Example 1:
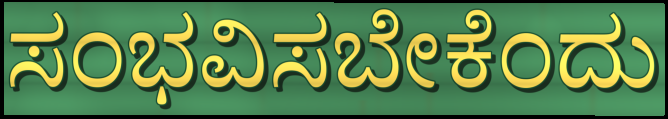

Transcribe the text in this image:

ಸಂಭವಿಸಬೇಕೆಂದು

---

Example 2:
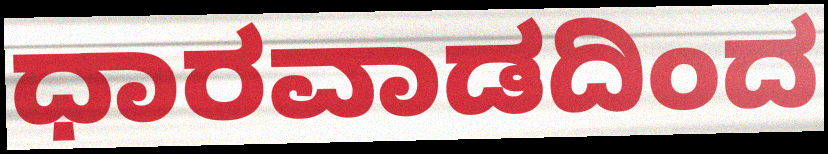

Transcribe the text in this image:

ಧಾರವಾಡದಿಂದ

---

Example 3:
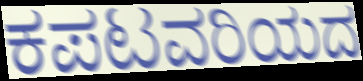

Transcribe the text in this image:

ಕಪಟವರಿಯದ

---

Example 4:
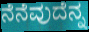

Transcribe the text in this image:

ನೆನೆವುದೆನ್ನ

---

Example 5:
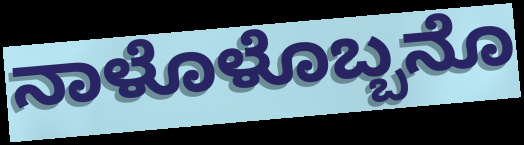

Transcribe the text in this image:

ನಾಳೊಳೊಬ್ಬನೊ